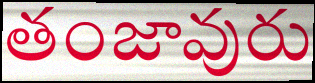
తంజావురు